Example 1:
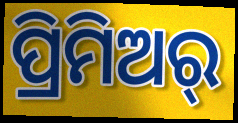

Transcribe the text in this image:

ପ୍ରିମିଅର୍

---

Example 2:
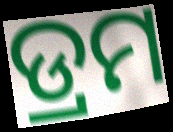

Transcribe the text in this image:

ଡ୍ରମ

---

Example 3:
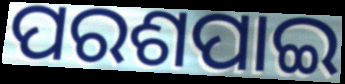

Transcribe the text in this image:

ପରଶପାଇ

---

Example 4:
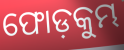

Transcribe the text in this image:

ଫୋଡ଼କୁମ୍ଭ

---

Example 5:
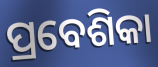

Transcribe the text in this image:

ପ୍ରବେଶିକା